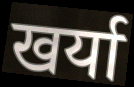
खर्या